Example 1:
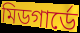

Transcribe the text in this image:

মিডগার্ডে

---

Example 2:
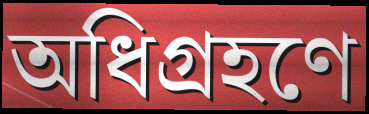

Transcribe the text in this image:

অধিগ্রহণে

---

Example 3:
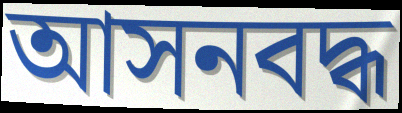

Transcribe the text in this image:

আসনবদ্ধ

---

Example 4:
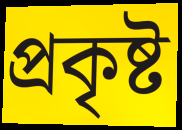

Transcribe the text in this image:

প্রকৃষ্ট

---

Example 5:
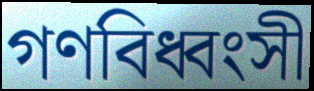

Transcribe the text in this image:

গণবিধ্বংসী